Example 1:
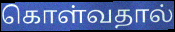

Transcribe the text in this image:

கொள்வதால்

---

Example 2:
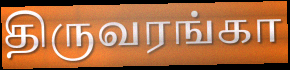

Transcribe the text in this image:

திருவரங்கா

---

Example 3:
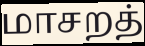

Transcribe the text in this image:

மாசறத்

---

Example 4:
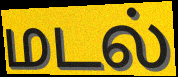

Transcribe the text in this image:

மடல்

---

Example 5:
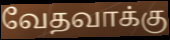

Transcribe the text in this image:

வேதவாக்கு